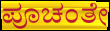
ಪೂಚಂತೇ